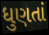
ધુણતાં